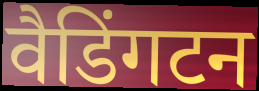
वैडिंगटन